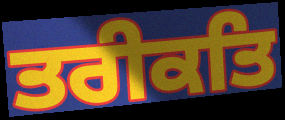
ਤਰੀਕਤਿ